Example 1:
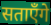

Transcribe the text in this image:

सताएँगे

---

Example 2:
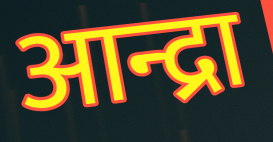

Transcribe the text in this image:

आन्द्रा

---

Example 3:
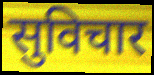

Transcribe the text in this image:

सुविचार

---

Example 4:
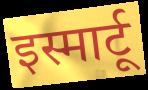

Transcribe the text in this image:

इस्मार्टू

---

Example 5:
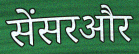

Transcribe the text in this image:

सेंसरऔर